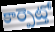
కార్పెట్తో